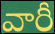
వారీ